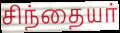
சிந்தையர்